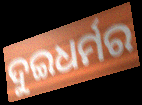
ଦୁଇଧର୍ମର